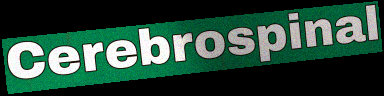
Cerebrospinal